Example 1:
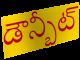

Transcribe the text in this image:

డౌన్బీట్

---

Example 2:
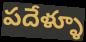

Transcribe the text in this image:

పదేళ్ళూ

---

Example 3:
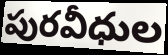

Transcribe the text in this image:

పురవీధుల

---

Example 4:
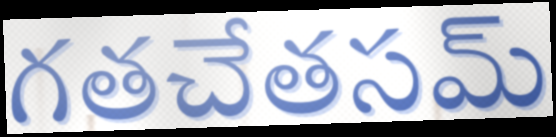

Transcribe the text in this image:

గతచేతసమ్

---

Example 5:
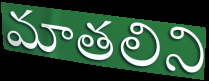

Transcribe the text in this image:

మాతలిని